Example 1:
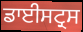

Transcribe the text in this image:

ਡਾਈਸਟ੍ਰਸ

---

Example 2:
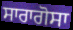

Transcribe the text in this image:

ਸਾਰਾਗੋਸਾ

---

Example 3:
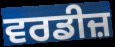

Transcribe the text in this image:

ਵਰਡੀਜ਼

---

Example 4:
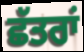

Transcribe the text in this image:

ਛੱਤਰਾਂ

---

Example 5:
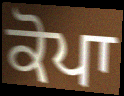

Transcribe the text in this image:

ਕੋਪਾ